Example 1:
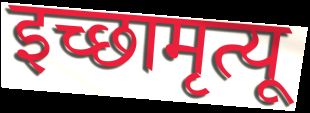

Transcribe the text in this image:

इच्छामृत्यू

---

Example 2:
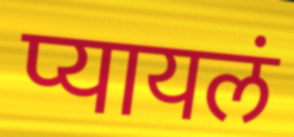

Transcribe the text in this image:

प्यायलं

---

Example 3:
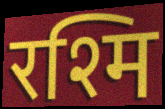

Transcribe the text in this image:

रश्मि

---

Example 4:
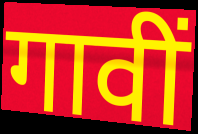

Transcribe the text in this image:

गावीं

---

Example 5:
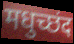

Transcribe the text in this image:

मधुच्छंद